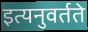
इत्यनुवर्तते